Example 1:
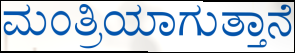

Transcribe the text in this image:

ಮಂತ್ರಿಯಾಗುತ್ತಾನೆ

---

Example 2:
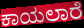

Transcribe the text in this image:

ಕಾಯಲಾರೆ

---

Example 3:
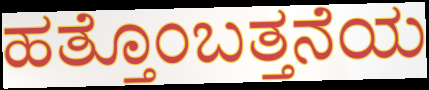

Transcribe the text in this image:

ಹತ್ತೊಂಬತ್ತನೆಯ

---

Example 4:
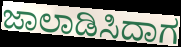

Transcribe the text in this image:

ಜಾಲಾಡಿಸಿದಾಗ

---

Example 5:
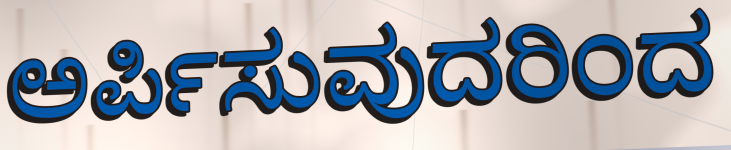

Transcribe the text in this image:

ಅರ್ಪಿಸುವುದರಿಂದ